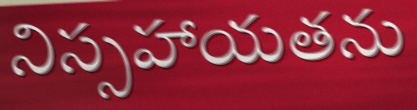
నిస్సహాయతను